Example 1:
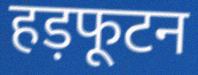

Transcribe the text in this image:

हड़फूटन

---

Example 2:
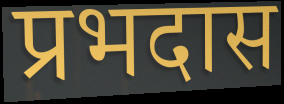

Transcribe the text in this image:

प्रभदास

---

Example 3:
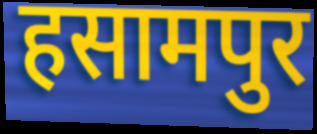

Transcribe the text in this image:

हसामपुर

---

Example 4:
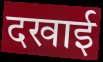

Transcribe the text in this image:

दखाई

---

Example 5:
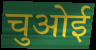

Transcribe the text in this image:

चुओई